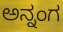
ಅನ್ನಂಗ